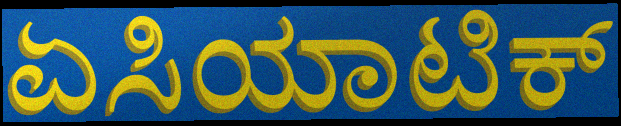
ಏಸಿಯಾಟಿಕ್